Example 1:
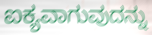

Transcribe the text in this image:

ಐಕ್ಯವಾಗುವುದನ್ನು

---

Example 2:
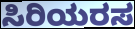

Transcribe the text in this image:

ಸಿರಿಯರಸ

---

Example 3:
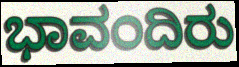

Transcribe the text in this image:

ಭಾವಂದಿರು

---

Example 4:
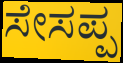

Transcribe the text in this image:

ಸೇಸಪ್ಪ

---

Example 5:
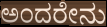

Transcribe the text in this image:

ಅಂದರೇನು